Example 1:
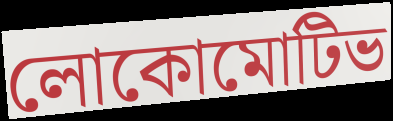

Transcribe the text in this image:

লোকোমোটিভ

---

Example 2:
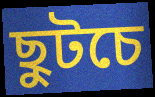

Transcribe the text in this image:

ছুটচে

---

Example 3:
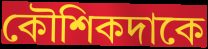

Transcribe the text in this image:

কৌশিকদাকে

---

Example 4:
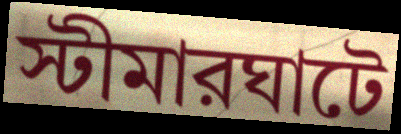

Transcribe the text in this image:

স্টীমারঘাটে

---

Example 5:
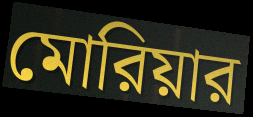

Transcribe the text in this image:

মোরিয়ার